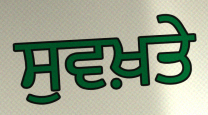
ਸੁਵਖ਼ਤੇ